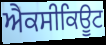
ਐਕਸੀਕਿਊਟ